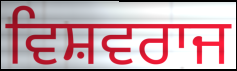
ਵਿਸ਼ਵਰਾਜ